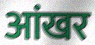
आंखर